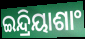
ଇନ୍ଦ୍ରିୟାଶାଂ